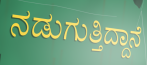
ನಡುಗುತ್ತಿದ್ದಾನೆ